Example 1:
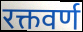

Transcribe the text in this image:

रक्तवर्ण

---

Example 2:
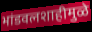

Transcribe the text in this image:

भांडवलशाहीमुळे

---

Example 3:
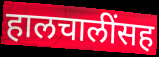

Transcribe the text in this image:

हालचालींसह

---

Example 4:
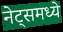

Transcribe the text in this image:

नेट्समध्ये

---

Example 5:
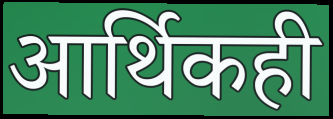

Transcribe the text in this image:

आर्थिकही